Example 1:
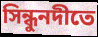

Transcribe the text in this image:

সিন্ধুনদীতে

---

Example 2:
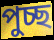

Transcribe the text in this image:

পুচ্ছ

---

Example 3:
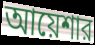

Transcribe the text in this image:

আয়েশার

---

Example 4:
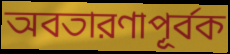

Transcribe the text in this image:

অবতারণাপূর্বক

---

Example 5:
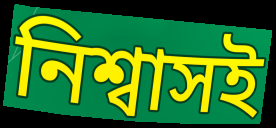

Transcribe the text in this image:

নিশ্বাসই